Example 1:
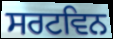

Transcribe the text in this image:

ਸਰਟਵਿਨ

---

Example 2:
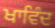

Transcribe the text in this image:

ਖਾਵਿੰਦ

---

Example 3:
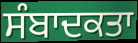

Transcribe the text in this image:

ਸੰਬਾਦਕਤਾ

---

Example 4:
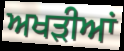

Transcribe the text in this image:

ਅਖੜੀਆਂ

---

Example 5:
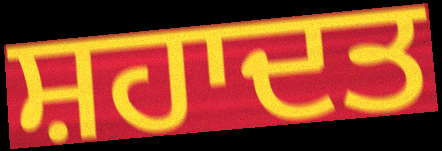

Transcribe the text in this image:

ਸ਼ਹਾਦਤ